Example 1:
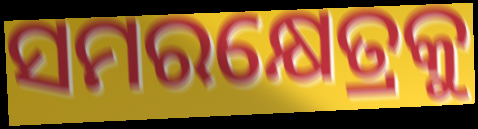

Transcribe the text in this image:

ସମରକ୍ଷେତ୍ରକୁ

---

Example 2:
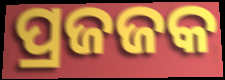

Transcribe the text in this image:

ପ୍ରଜଜକ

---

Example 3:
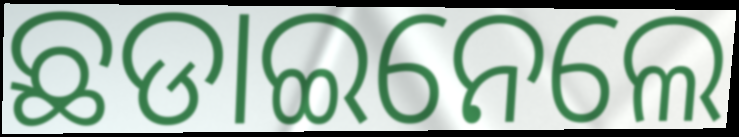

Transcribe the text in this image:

ଛଡାଇନେଲେ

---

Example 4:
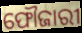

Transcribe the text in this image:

ଫୌଜାରୀ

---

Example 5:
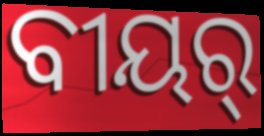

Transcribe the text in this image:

ବୀୟର୍